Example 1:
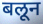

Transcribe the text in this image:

बलून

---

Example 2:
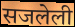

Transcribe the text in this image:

सजलेली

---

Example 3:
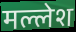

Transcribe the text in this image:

मल्लेश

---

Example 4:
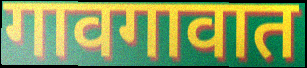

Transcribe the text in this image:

गावगावात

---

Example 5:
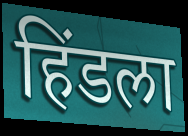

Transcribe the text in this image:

हिंडला